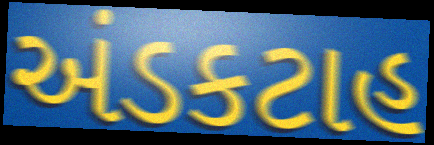
અંડકટાહ